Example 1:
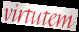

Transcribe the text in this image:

virtutem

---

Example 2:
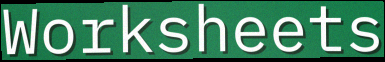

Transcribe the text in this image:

Worksheets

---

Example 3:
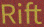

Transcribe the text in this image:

Rift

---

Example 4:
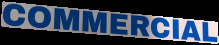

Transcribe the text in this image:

COMMERCIAL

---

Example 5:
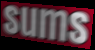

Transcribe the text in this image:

sums